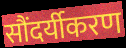
सौंदर्यीकरण